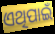
ଏଥିପାଇଁ